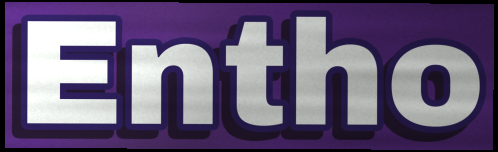
Entho